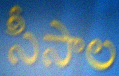
సీసాల